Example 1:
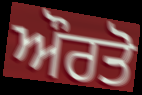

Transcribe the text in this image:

ਔਰਤੋ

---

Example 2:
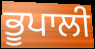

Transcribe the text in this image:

ਭੂਪਾਲੀ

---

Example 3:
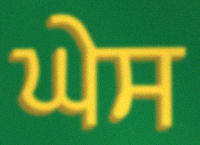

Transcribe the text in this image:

ਘੇਸ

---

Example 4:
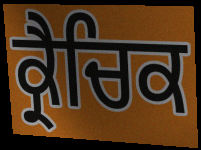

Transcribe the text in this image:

ਕ੍ਰੈਚਿਕ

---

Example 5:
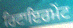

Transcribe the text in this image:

ਰਿਟਾਇਰਮੇਂਟ